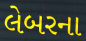
લેબરના